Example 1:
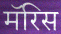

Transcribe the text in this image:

मॅरिस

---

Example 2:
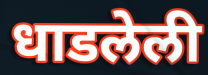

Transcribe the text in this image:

धाडलेली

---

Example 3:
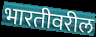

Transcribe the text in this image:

भारतीवरील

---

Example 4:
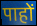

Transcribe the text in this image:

पाहों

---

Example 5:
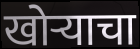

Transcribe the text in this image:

खोर्‍याचा